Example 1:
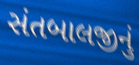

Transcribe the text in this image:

સંતબાલજીનું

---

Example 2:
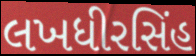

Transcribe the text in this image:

લખધીરસિંહ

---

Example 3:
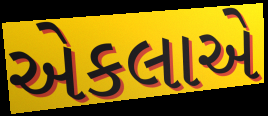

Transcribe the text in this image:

એકલાએ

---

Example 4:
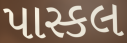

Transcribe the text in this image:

પાસ્કલ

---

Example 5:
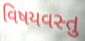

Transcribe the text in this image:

વિષયવસ્તુ